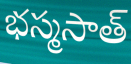
భస్మసాత్